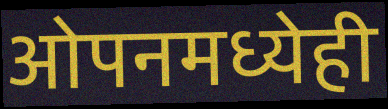
ओपनमध्येही